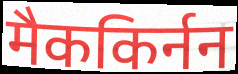
मैककिर्नन